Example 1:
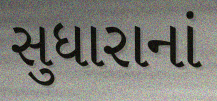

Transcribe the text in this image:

સુધારાનાં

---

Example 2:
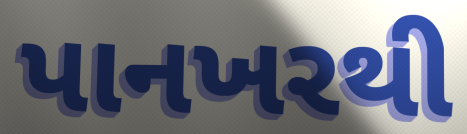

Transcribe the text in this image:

પાનખરથી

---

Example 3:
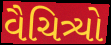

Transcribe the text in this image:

વૈચિત્ર્યો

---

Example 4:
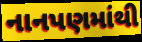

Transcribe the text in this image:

નાનપણમાંથી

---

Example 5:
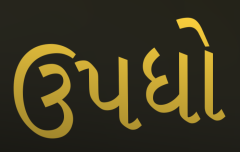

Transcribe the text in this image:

ઉપધો